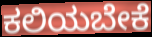
ಕಲಿಯಬೇಕೆ